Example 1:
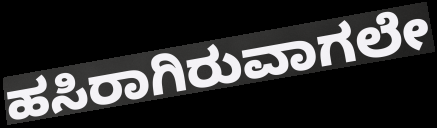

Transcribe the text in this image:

ಹಸಿರಾಗಿರುವಾಗಲೇ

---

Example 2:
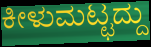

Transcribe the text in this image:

ಕೀಳುಮಟ್ಟದ್ದು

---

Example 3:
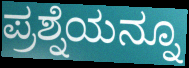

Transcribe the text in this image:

ಪ್ರಶ್ನೆಯನ್ನೂ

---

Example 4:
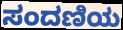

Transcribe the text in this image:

ಸಂದಣಿಯ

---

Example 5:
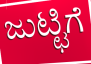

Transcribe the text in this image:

ಜುಟ್ಟಿಗೆ